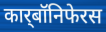
कार्‌बॉनिफेरस